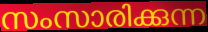
സംസാരിക്കുന്ന